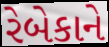
રેબેકાને